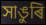
সাঙুৰি